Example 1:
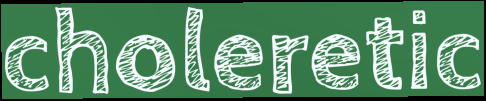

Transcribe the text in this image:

choleretic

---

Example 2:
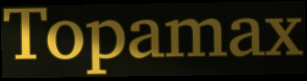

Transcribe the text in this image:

Topamax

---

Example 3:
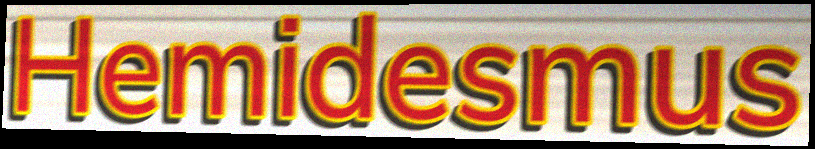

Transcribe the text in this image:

Hemidesmus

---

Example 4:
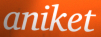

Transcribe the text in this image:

aniket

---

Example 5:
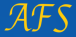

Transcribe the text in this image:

AFS